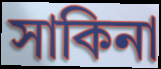
সাকিনা